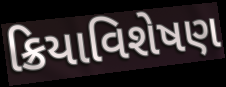
ક્રિયાવિશેષણ